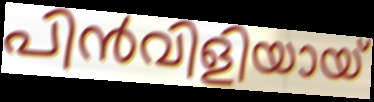
പിൻവിളിയായ്